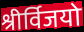
श्रीर्विजयो